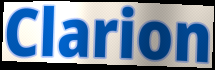
Clarion